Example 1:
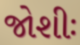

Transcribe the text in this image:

જોશીઃ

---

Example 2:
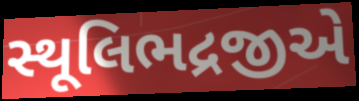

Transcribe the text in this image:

સ્થૂલિભદ્રજીએ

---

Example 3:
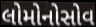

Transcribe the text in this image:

લોમોનોસોવ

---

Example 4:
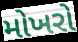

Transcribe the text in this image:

મોખરો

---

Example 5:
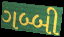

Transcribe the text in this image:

ગબ્બી